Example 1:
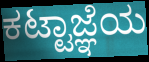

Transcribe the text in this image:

ಕಟ್ಟಾಜ್ಞೆಯ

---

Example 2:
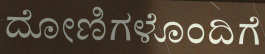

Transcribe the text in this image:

ದೋಣಿಗಳೊಂದಿಗೆ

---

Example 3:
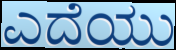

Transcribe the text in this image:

ಎದೆಯು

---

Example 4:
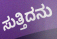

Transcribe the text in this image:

ಸುತ್ತಿದನು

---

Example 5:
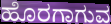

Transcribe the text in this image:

ಹೊರಗಾಗುವ